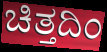
ಚಿತ್ತದಿಂ